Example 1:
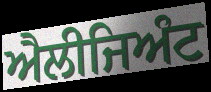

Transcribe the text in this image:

ਐਲੀਜਿਅੰਟ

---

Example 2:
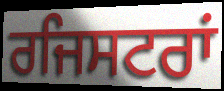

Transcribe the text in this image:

ਰਜਿਸਟਰਾਂ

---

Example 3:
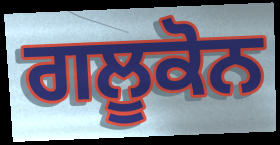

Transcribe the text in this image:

ਗਲੂਕੋਨ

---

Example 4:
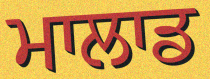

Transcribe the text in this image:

ਮਾਲਾਡ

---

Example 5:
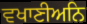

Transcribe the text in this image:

ਵਖਾਣੀਅਨਿ